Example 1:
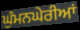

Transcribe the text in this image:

ਘੁੰਮਨਘੇਰੀਆਂ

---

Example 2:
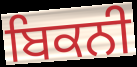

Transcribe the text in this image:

ਬਿਕਨੀ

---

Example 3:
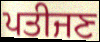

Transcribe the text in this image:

ਪਤੀਜਣ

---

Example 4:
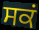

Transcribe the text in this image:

ਸਕਂ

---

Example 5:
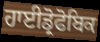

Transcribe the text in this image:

ਹਾਈਡ੍ਰੋਫੋਬਿਕ